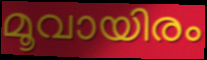
മൂവായിരം